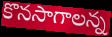
కొనసాగాలన్న